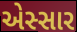
એસ્સાર